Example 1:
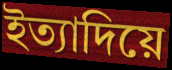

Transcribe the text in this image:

ইত্যাদিয়ে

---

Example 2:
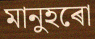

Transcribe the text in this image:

মানুহৰো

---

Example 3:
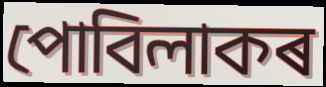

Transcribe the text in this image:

পোবিলাকৰ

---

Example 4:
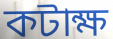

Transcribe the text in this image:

কটাক্ষ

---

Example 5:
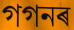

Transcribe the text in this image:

গগনৰ